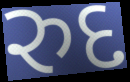
રુદ